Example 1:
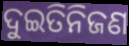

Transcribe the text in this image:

ଦୁଇତିନିଜଣ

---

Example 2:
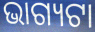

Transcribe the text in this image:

ଭାଗ୍ୟଟା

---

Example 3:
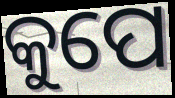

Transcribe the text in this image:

କୁପେ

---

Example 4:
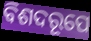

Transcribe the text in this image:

ବିଶଦରୂପେ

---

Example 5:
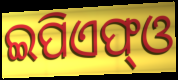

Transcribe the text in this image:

ଇପିଏଫ୍ଓ